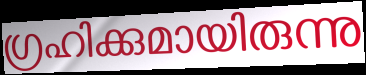
ഗ്രഹിക്കുമായിരുന്നു